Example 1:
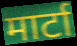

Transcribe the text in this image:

मार्टा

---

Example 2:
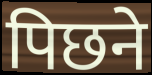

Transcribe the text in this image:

पिछने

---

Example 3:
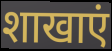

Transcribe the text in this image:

शाखाएं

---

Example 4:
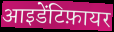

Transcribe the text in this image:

आइडेंटिफ़ायर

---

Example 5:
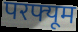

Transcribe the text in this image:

परफ्यूम